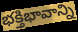
భక్తిభావాన్ని